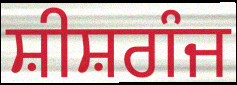
ਸ਼ੀਸ਼ਗੰਜ